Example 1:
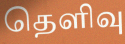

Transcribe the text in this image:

தெளிவு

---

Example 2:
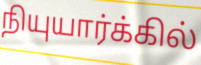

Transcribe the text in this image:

நியுயார்க்கில்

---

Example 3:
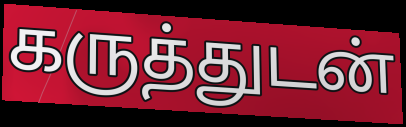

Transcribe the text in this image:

கருத்துடன்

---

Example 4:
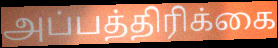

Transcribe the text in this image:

அப்பத்திரிக்கை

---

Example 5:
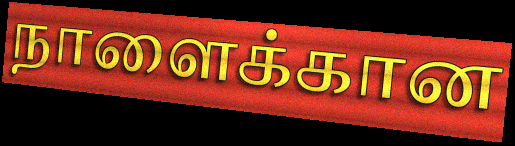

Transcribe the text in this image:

நாளைக்கான